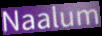
Naalum